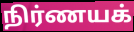
நிர்ணயக்